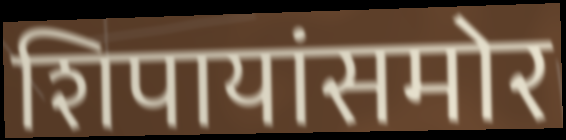
शिपायांसमोर